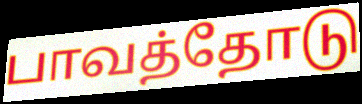
பாவத்தோடு